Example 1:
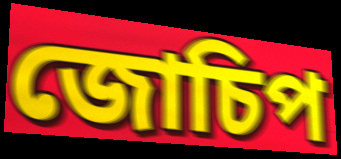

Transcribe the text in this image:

জোচিপ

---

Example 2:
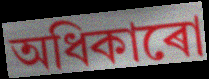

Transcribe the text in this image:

অধিকাৰো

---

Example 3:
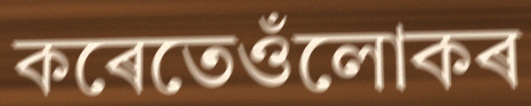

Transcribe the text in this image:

কৰেতেওঁলোকৰ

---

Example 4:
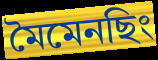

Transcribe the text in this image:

মৈমেনছিং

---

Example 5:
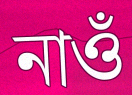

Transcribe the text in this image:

নাওঁ